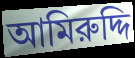
আমিরুদ্দি